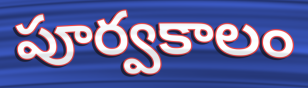
పూర్వకాలం